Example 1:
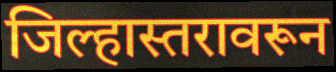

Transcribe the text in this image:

जिल्हास्तरावरून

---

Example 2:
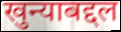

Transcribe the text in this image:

खुन्याबद्दल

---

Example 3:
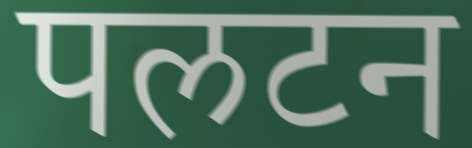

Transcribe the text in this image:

पलटन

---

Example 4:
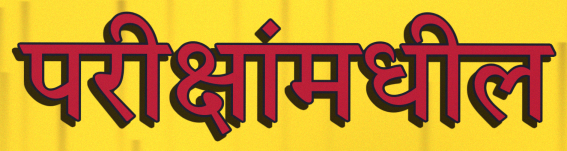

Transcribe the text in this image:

परीक्षांमधील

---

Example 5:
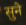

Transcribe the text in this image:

सुने